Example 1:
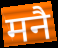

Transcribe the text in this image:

मनै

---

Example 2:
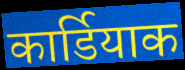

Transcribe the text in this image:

कार्डियाक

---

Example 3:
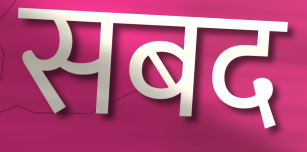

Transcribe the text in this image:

सबद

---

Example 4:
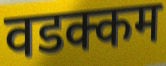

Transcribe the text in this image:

वडक्कम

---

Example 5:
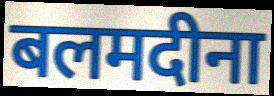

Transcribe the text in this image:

बलमदीना